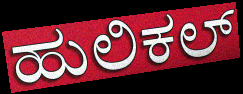
ಹುಲಿಕಲ್